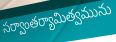
సర్వాంతర్యామిత్వమును